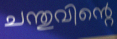
ചന്തുവിന്റെ